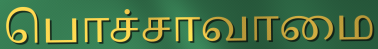
பொச்சாவாமை